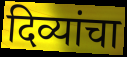
दिव्यांचा